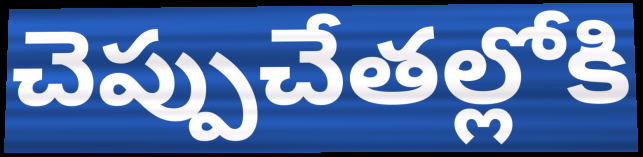
చెప్పుచేతల్లోకి